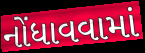
નોંધાવવામાં